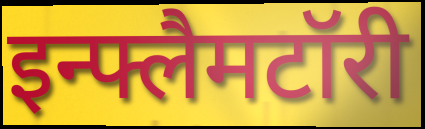
इन्फ्लैमटॉरी